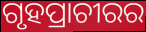
ଗୃହପ୍ରାଚୀରର